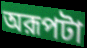
অরূপটা